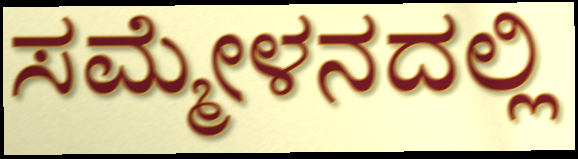
ಸಮ್ಮೇಳನದಲ್ಲಿ